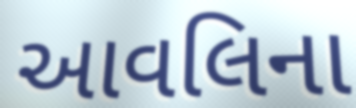
આવલિના